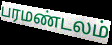
பரமண்டலம்